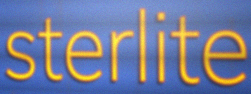
sterlite